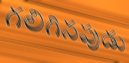
గలిగినపుడు